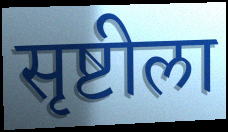
सृष्टीला